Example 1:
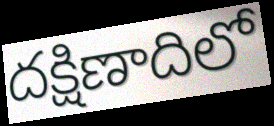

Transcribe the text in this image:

దక్షిణాదిలో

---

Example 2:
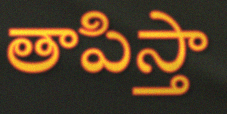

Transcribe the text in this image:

తాపిస్తా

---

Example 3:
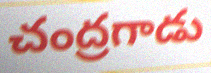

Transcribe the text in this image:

చంద్రగాడు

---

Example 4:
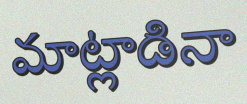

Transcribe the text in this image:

మాట్లాడినా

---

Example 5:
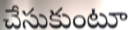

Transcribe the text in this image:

చేసుకుంటూ